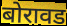
बोरावड